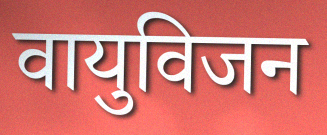
वायुविजन